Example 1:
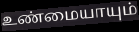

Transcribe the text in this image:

உண்மையாயும்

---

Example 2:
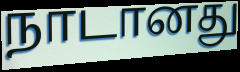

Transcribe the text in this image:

நாடானது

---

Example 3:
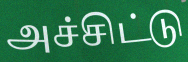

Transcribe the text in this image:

அச்சிட்டு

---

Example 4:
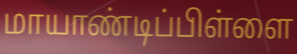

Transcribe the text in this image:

மாயாண்டிப்பிள்ளை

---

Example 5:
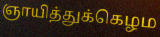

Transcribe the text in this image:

ஞாயித்துக்கெழம